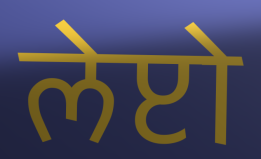
लेप्टो